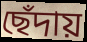
ছেঁদায়